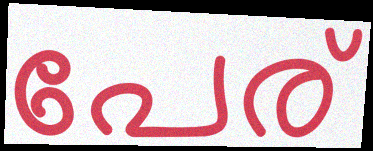
പേര്